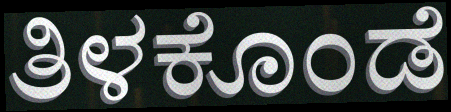
ತಿಳಕೊಂಡೆ